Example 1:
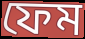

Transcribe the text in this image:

ফেম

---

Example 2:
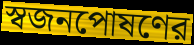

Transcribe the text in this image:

স্বজনপোষণের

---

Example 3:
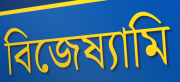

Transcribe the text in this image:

বিজেষ্যামি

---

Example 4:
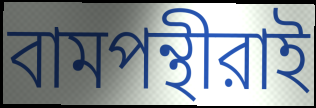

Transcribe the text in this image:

বামপন্থীরাই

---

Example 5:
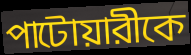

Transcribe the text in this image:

পাটোয়ারীকে